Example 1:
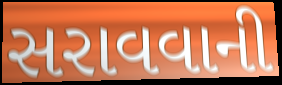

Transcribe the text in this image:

સરાવવાની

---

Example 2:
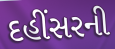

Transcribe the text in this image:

દહીંસરની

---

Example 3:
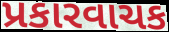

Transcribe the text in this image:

પ્રકારવાચક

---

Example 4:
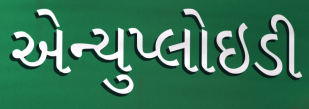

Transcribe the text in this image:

એન્યુપ્લોઇડી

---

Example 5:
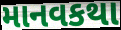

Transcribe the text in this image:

માનવકથા